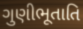
ગુણીભૂતાતિ